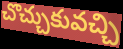
చొచ్చుకువచ్చి